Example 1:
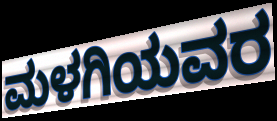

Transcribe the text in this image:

ಮಳಗಿಯವರ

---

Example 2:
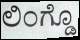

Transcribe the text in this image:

ಲಿಂಗ್ಡೊ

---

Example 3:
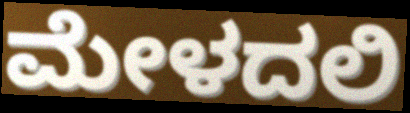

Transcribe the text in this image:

ಮೇಳದಲಿ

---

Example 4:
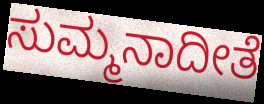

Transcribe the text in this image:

ಸುಮ್ಮನಾದೀತೆ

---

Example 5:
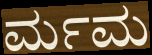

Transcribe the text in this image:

ರ್ಮಮ